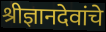
श्रीज्ञानदेवांचे